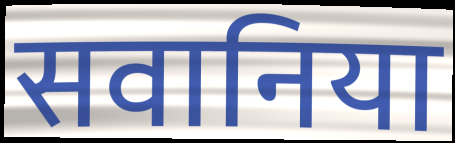
सवानिया